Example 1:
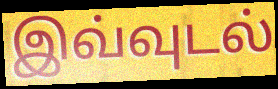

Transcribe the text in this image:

இவ்வுடல்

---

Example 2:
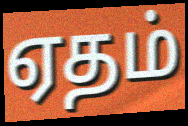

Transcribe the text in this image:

ஏதம்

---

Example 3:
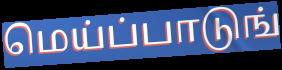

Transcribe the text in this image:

மெய்ப்பாடுங்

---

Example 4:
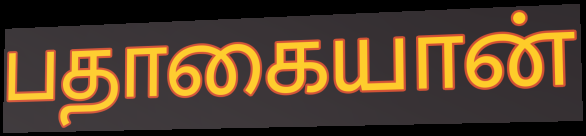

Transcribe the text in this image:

பதாகையான்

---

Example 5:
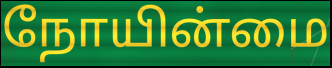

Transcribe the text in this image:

நோயின்மை